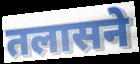
तलासने